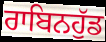
ਰਾਬਿਨਹੁੱਡ